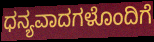
ಧನ್ಯವಾದಗಳೊಂದಿಗೆ